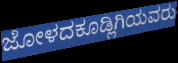
ಜೋಳದಕೂಡ್ಲಿಗಿಯವರು